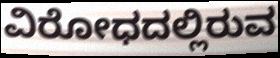
ವಿರೋಧದಲ್ಲಿರುವ